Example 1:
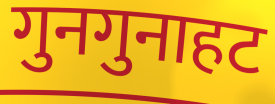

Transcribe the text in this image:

गुनगुनाहट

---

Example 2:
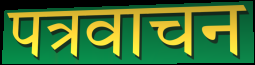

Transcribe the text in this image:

पत्रवाचन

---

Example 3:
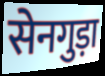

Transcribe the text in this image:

सेनगुड़ा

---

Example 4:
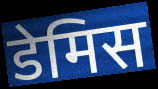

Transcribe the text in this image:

डेमिस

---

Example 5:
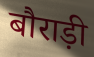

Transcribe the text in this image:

बौराड़ी